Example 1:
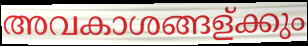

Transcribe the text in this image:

അവകാശങ്ങള്ക്കും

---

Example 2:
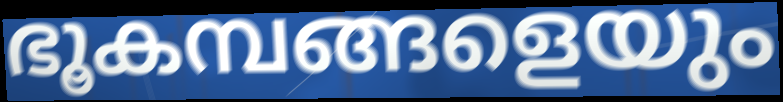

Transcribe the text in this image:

ഭൂകമ്പങ്ങളെയും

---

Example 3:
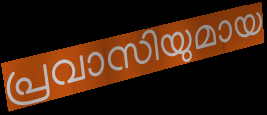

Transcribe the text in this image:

പ്രവാസിയുമായ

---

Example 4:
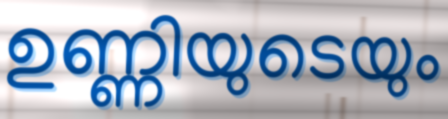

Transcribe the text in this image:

ഉണ്ണിയുടെയും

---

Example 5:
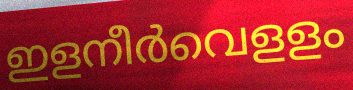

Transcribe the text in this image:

ഇളനീർവെളളം